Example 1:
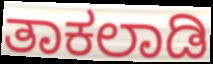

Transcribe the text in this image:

ತಾಕಲಾಡಿ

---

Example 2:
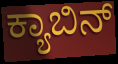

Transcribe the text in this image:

ಕ್ಯಾಬಿನ್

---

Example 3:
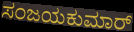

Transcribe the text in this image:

ಸಂಜಯಕುಮಾರ್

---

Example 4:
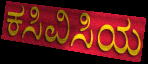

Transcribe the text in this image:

ಕಸಿವಿಸಿಯ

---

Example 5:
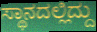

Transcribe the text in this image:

ಸ್ಥಾನದಲ್ಲಿದ್ದು